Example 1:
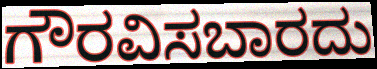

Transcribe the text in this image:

ಗೌರವಿಸಬಾರದು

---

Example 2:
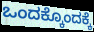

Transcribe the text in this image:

ಒಂದಕ್ಕೊಂದಕ್ಕೆ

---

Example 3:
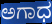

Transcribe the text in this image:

ಅಗಾಧ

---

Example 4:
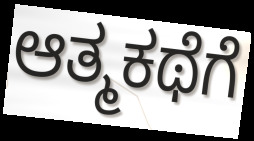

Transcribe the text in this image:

ಆತ್ಮಕಥೆಗೆ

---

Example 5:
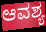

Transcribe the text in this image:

ಆವಶ್ಯ